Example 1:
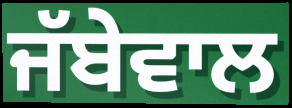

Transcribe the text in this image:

ਜੱਬੇਵਾਲ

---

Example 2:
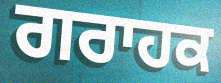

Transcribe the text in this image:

ਗਰਾਹਕ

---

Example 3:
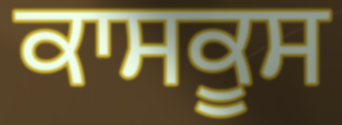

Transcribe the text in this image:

ਕਾਸਕੂਸ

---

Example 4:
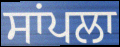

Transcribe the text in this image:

ਸਾਂਪਲਾ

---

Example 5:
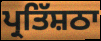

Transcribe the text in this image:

ਪ੍ਰਤਿੱਸ਼ਠਾ